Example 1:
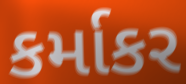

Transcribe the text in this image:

કર્માકર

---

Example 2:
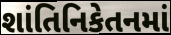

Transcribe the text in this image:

શાંતિનિકેતનમાં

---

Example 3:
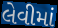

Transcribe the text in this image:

લેવીમાં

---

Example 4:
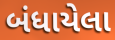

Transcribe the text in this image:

બંધાયેલા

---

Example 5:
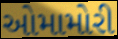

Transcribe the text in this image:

ઓમામોરી